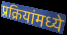
प्रक्रियांमध्ये